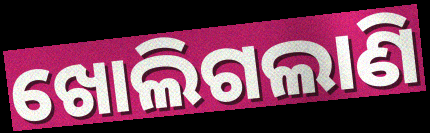
ଖୋଲିଗଲାଣି